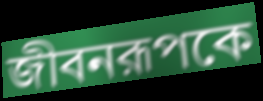
জীবনরূপকে